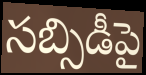
సబ్సిడీపై